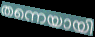
തന്നെയായി